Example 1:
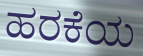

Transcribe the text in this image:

ಹರಕೆಯ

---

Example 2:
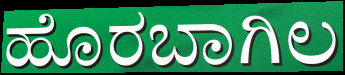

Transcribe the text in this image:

ಹೊರಬಾಗಿಲ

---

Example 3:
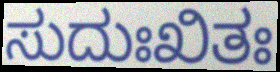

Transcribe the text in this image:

ಸುದುಃಖಿತಃ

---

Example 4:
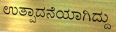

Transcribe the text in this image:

ಉತ್ಪಾದನೆಯಾಗಿದ್ದು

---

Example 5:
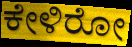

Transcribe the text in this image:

ಕೇಳಿರೋ